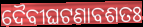
ଦୈବୀଘଟଣାବଶତଃ